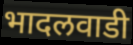
भादलवाडी